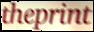
theprint